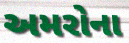
અમરોના